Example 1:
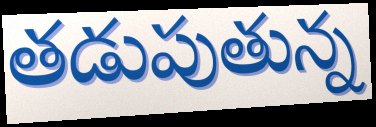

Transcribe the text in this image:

తడుపుతున్న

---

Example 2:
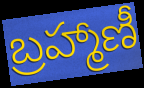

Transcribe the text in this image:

బ్రహ్మాణీ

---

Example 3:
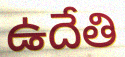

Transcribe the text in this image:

ఉదేతి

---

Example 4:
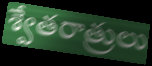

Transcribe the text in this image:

శ్వేతరాత్రులు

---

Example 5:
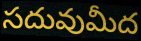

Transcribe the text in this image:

సదువుమీద